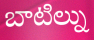
బాటిల్ను